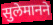
सुलेमानने